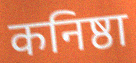
कनिष्ठा